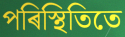
পৰিস্থিতিতে